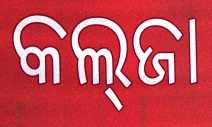
କଲ୍‌ଜା